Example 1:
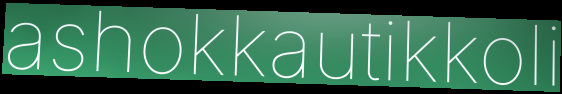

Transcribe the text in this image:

ashokkautikkoli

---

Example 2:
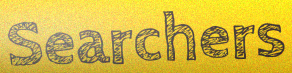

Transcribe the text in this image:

Searchers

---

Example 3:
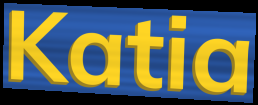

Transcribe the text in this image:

Katia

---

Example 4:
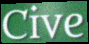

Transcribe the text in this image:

Cive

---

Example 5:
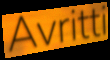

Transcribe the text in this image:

Avritti